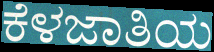
ಕೆಳಜಾತಿಯ